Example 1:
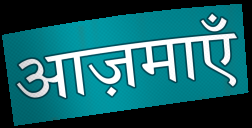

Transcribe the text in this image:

आज़माएँ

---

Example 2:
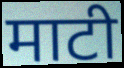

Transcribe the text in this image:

माटी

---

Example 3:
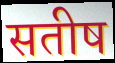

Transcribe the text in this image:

सतीष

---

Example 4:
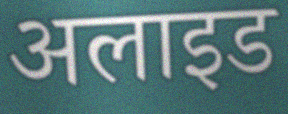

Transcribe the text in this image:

अलाइड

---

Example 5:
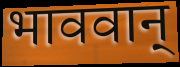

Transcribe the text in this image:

भाववान्